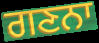
ਗਣਨਾ